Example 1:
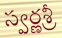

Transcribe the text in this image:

స్వర్ణశ్రీ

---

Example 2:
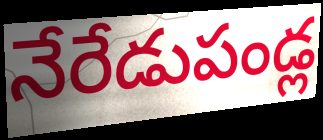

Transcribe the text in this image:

నేరేడుపండ్ల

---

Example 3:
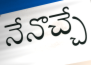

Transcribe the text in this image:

నేనొచ్చే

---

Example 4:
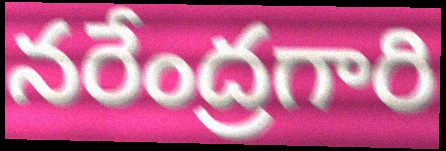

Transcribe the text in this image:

నరేంద్రగారి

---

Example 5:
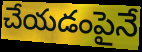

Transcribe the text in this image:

చేయడంపైనే